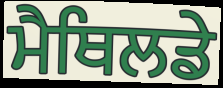
ਮੈਥਿਲਡੇ